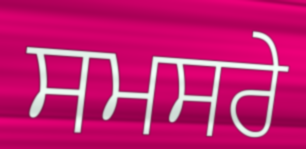
ਸਮਸਰੇ